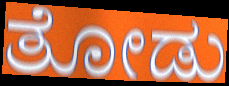
ತೋಡು